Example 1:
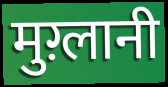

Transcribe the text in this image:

मुग़्लानी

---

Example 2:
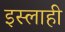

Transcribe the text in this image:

इस्लाही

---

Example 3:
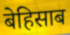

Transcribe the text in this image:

बेहिसाब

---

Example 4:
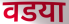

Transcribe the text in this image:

वडया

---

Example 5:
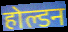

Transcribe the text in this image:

होल्डन